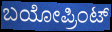
ಬಯೋಪ್ರಿಂಟ್